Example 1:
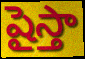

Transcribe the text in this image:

షైస్తా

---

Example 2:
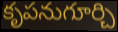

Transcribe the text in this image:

కృపనుగూర్చి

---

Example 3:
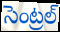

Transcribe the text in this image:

సెంట్రల్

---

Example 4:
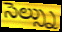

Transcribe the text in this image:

సెల్స్ను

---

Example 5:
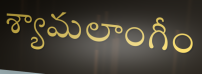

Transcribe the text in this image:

శ్యామలాంగీం